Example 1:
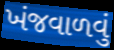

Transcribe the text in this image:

ખંજવાળવું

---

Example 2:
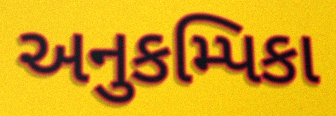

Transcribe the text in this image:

અનુકમ્પિકા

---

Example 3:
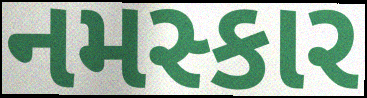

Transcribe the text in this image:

નમસ્કાર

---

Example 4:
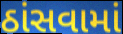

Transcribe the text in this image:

ઠાંસવામાં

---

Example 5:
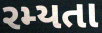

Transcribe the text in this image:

રમ્યતા